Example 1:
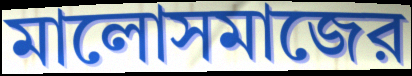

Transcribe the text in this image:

মালোসমাজের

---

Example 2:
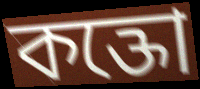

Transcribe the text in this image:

কক্তো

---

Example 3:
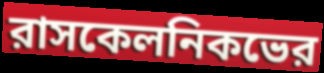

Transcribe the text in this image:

রাসকেলনিকভের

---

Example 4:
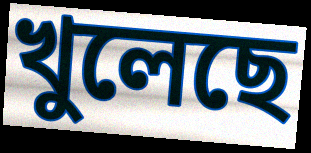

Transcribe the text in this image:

খুলেছে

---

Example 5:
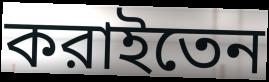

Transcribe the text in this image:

করাইতেন